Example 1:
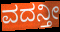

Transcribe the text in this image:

ವದನ್ತೀ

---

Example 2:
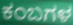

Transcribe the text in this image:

ಕಂಬಗಳ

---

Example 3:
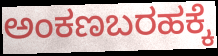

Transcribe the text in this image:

ಅಂಕಣಬರಹಕ್ಕೆ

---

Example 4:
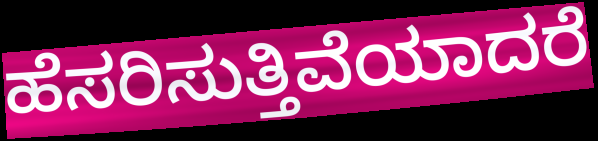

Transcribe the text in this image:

ಹೆಸರಿಸುತ್ತಿವೆಯಾದರೆ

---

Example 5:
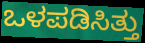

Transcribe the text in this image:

ಒಳಪಡಿಸಿತ್ತು